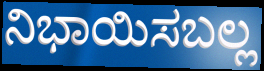
ನಿಭಾಯಿಸಬಲ್ಲ